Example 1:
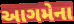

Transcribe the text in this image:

આગમેના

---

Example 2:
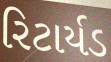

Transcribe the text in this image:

રિટાર્યડ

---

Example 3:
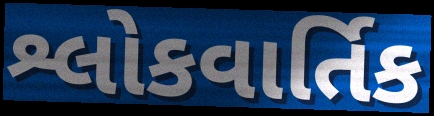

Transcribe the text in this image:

શ્લોકવાર્તિક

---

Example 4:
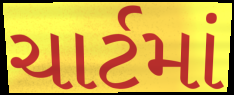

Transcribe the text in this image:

ચાર્ટમાં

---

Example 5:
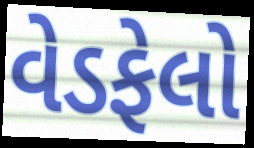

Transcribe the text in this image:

વેડફેલો